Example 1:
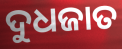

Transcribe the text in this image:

ଦୁଧଜାତ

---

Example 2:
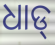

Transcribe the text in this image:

ଧାଡ୍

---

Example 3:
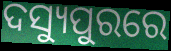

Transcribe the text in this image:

ଦସ୍ୟୁପୁରରେ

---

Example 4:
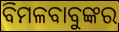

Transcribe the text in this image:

ବିମଳବାବୁଙ୍କର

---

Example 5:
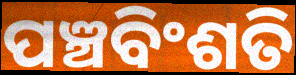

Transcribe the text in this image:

ପଞ୍ଚବିଂଶତି